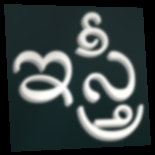
ఇస్త్రీ